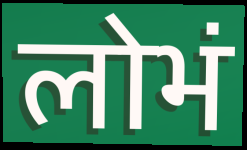
लोभं